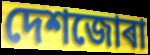
দেশজোৰা